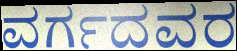
ವರ್ಗದವರ